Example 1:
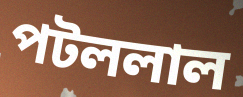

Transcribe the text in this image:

পটললাল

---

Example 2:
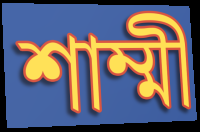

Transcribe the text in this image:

শাম্মী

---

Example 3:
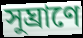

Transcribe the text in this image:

সুঘ্রাণে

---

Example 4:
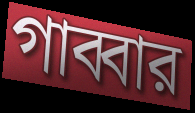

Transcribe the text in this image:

গাব্বার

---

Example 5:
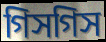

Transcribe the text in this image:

গিসগিস